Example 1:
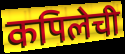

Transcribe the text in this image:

कपिलेची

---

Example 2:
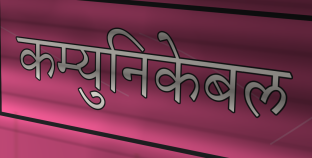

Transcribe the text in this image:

कम्युनिकेबल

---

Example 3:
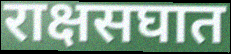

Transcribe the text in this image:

राक्षसघात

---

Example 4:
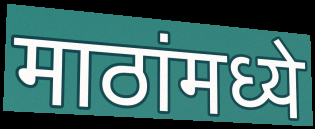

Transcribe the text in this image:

माठांमध्ये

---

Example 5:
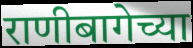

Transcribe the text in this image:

राणीबागेच्या